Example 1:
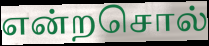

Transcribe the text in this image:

என்றசொல்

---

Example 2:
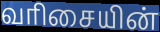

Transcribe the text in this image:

வரிசையின்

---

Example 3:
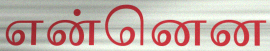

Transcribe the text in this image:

என்னென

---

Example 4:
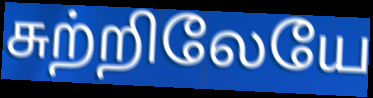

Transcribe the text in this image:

சுற்றிலேயே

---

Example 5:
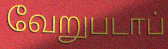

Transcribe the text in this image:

வேறுபடாப்